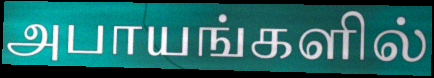
அபாயங்களில்